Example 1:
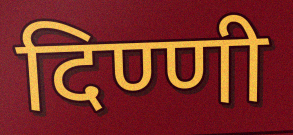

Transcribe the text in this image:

दिण्णी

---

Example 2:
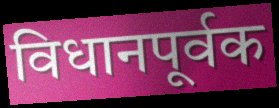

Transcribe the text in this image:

विधानपूर्वक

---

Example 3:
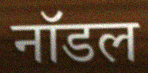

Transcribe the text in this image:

नॉडल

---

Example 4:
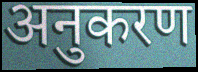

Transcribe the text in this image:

अनुकरण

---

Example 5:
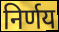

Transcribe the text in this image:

निर्णय